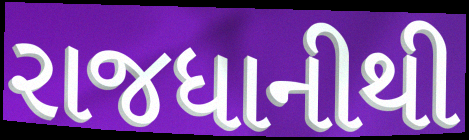
રાજધાનીથી